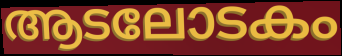
ആടലോടകം